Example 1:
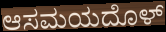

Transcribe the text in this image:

ಆಸಮಯದೊಳ್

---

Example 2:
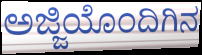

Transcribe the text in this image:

ಅಜ್ಜಿಯೊಂದಿಗಿನ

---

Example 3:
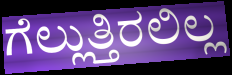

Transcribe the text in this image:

ಗೆಲ್ಲುತ್ತಿರಲಿಲ್ಲ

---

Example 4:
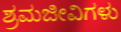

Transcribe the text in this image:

ಶ್ರಮಜೀವಿಗಳು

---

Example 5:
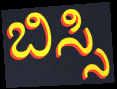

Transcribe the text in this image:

ಬಿಸ್ಸಿ